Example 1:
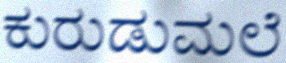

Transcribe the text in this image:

ಕುರುಡುಮಲೆ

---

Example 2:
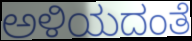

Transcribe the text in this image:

ಅಳಿಯದಂತೆ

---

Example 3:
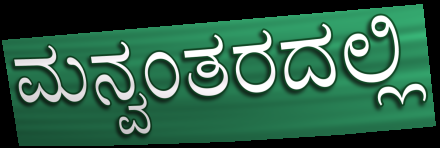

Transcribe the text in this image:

ಮನ್ವಂತರದಲ್ಲಿ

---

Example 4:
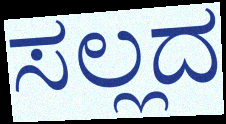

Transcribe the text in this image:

ಸಲ್ಲದ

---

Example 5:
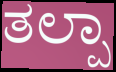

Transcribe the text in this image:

ತಲ್ಪಾ